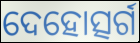
ଦେହୋତ୍ସର୍ଗ